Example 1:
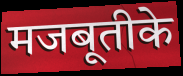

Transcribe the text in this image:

मजबूतीके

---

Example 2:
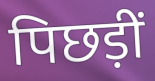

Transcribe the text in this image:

पिछड़ीं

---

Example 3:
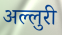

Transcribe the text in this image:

अल्लुरी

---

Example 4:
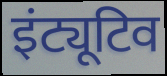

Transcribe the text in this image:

इंट्यूटिव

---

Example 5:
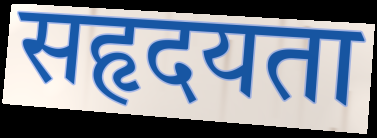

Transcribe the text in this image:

सहृदयता